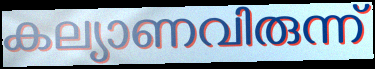
കല്യാണവിരുന്ന്